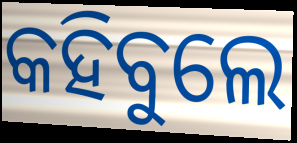
କହିବୁଲେ